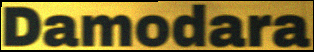
Damodara